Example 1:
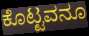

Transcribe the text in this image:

ಕೊಟ್ಟವನೂ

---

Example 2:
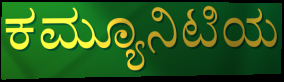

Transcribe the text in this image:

ಕಮ್ಯೂನಿಟಿಯ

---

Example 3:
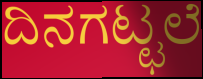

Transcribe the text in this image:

ದಿನಗಟ್ಟಲೆ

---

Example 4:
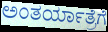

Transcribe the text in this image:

ಅಂತರ್ಯಾತ್ರೆಗೆ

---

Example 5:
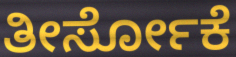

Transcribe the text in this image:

ತೀರ್ಸೋಕೆ